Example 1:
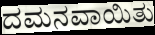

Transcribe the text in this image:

ದಮನವಾಯಿತು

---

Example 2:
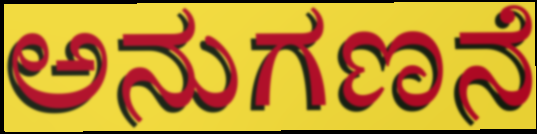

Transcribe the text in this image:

ಅನುಗಣನೆ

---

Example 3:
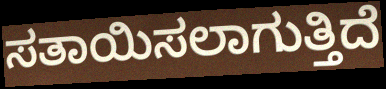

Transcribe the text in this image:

ಸತಾಯಿಸಲಾಗುತ್ತಿದೆ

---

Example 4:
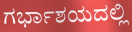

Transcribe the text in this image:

ಗರ್ಭಾಶಯದಲ್ಲಿ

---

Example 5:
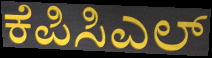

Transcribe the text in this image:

ಕೆಪಿಸಿಎಲ್